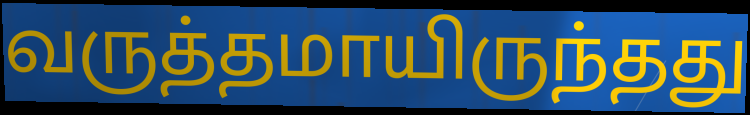
வருத்தமாயிருந்தது